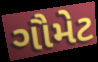
ગૌમેટ